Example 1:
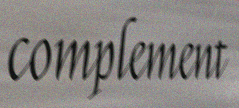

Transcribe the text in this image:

complement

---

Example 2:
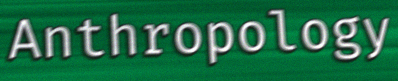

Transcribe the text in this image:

Anthropology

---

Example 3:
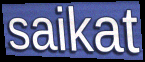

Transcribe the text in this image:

saikat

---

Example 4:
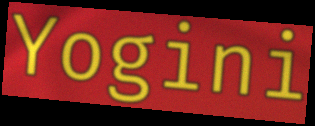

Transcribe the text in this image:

Yogini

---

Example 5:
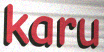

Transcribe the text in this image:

karu